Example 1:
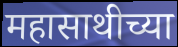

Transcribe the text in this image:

महासाथीच्या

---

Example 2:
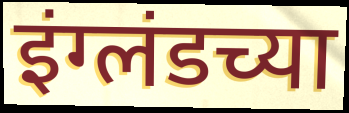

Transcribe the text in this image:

इंग्लंडच्या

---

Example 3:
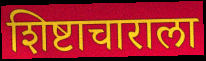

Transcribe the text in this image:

शिष्टाचाराला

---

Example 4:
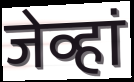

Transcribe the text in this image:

जेव्हां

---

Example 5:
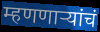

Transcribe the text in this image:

म्हणणाऱ्यांचं